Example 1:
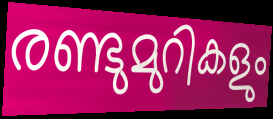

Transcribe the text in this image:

രണ്ടുമുറികളും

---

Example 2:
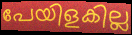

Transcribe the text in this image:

പേയിളകില്ല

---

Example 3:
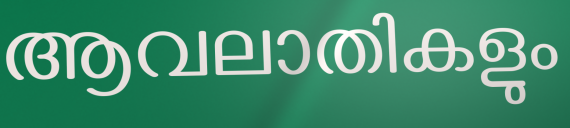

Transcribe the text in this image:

ആവലാതികളും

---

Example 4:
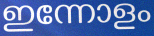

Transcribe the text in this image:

ഇന്നോളം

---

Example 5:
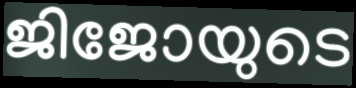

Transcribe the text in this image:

ജിജോയുടെ